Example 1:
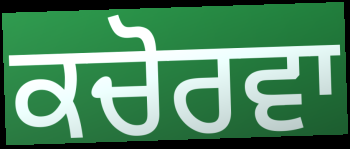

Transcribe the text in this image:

ਕਚੋਰਵਾ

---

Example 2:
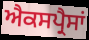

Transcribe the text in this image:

ਐਕਸਪ੍ਰੈਸਾਂ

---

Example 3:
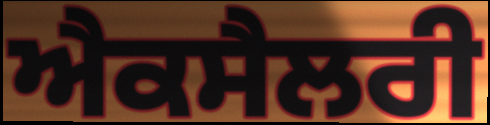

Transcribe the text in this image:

ਐਕਸੈਲਰੀ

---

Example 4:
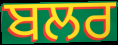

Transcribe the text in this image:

ਬਲਰ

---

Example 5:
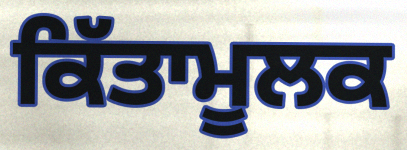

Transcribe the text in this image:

ਕਿੱਤਾਮੂਲਕ